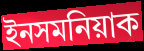
ইনসমনিয়াক